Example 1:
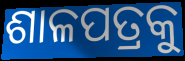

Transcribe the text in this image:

ଶାଳପତ୍ରକୁ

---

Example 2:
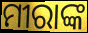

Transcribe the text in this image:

ମୀରାଙ୍କ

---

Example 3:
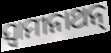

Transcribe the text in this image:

ସ୍ୱାମୀନାଥନ୍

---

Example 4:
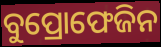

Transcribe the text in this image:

ବୁପ୍ରୋଫେଜିନ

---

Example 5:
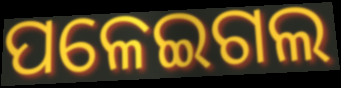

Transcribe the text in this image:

ପଳେଇଗଲ